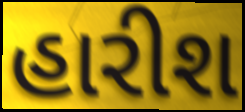
હારીશ